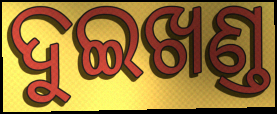
ଦୁଇଖଣ୍ଡ